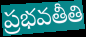
ప్రభవతీతి